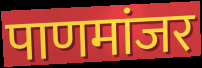
पाणमांजर